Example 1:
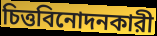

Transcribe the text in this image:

চিত্তবিনোদনকারী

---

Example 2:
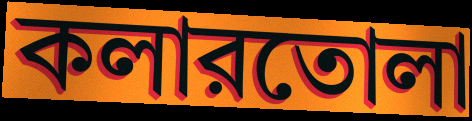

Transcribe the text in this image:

কলারতোলা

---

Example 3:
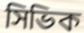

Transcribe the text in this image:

সিভিক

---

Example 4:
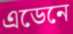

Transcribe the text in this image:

এডেনে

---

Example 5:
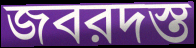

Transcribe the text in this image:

জবরদস্ত